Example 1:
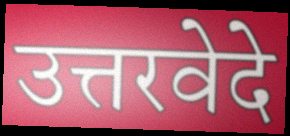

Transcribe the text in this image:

उत्तरवेदे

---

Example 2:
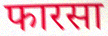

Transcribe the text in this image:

फारसा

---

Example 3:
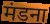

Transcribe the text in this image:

मंडना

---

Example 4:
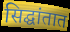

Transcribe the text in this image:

सिद्घांतात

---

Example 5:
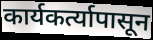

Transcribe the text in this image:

कार्यकर्त्यापासून